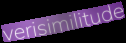
verisimilitude